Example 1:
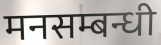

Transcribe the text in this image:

मनसम्बन्धी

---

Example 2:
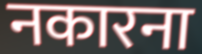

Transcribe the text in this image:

नकारना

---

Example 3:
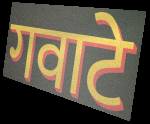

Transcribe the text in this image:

गवाटे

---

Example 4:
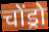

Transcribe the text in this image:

चोंड्रो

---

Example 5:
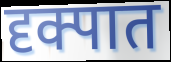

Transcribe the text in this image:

दृक्पात